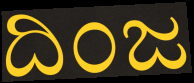
ದಿಂಜ